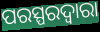
ପରସ୍ପରଦ୍ୱାରା